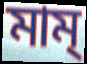
মাম্